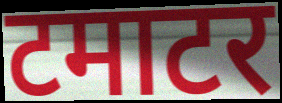
टमाटर